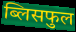
ब्लिसफुल